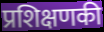
प्रशिक्षणकी